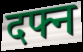
दफ्न